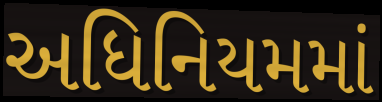
અધિનિયમમાં